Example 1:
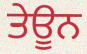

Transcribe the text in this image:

ਤੇਊਨ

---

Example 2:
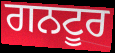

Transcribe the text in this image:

ਗਨਟੂਰ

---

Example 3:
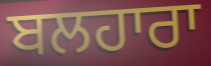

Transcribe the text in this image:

ਬਲਹਾਰਾ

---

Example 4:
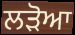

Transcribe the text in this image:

ਲੜੋਆ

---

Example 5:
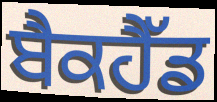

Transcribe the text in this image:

ਬੈਕਹੈੱਡ